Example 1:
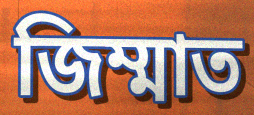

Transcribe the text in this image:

জিম্মাত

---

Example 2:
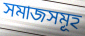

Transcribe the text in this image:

সমাজসমূহ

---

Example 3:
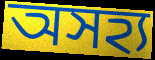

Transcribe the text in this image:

অসহ্য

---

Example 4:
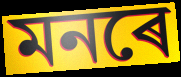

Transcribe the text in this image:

মনৰে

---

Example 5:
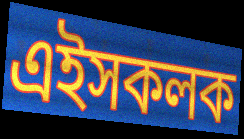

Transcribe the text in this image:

এইসকলক